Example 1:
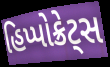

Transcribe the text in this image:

હિપ્પોક્રેટ્સ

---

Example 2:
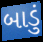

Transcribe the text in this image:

બાડું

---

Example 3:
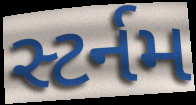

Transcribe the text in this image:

સ્ટર્નમ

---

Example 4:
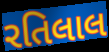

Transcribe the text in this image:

રતિલાલ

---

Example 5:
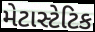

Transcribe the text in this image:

મેટાસ્ટેટિક